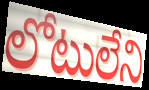
లోటులేని